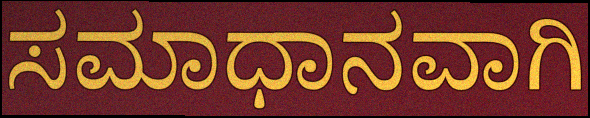
ಸಮಾಧಾನವಾಗಿ